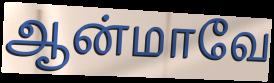
ஆன்மாவே